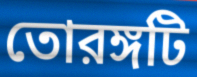
তোরঙ্গটি